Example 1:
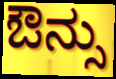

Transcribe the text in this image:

ಔನ್ಸು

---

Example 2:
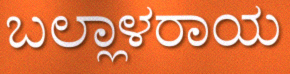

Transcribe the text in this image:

ಬಲ್ಲಾಳರಾಯ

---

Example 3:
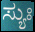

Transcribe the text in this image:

ಸ್ಯುಃ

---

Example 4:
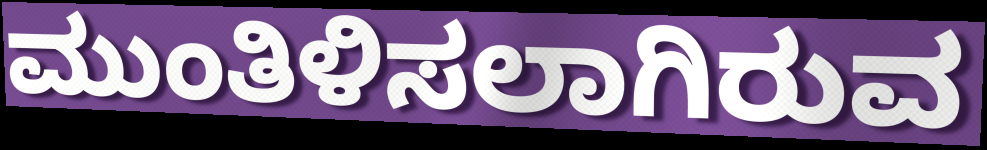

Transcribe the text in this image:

ಮುಂತಿಳಿಸಲಾಗಿರುವ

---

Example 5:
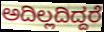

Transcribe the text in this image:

ಅದಿಲ್ಲದಿದ್ದರೆ